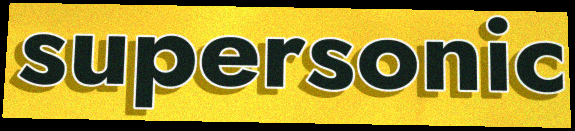
supersonic